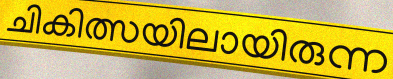
ചികിത്സയിലായിരുന്ന